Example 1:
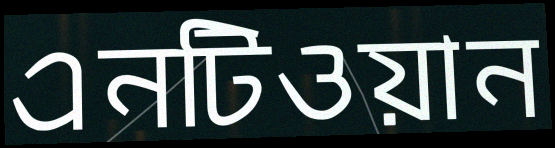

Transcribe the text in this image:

এনটিওয়ান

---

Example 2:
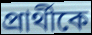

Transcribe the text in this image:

প্রার্থীকে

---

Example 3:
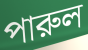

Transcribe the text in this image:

পারুল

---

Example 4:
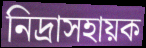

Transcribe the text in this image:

নিদ্রাসহায়ক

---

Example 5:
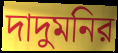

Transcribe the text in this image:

দাদুমনির